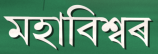
মহাবিশ্বৰ